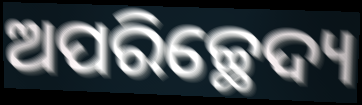
ଅପରିଚ୍ଛେଦ୍ୟ